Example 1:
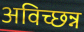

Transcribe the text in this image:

अविच्छन्न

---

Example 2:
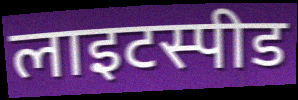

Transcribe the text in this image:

लाइटस्पीड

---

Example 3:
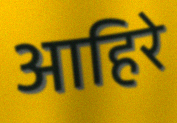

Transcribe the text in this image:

आहिरे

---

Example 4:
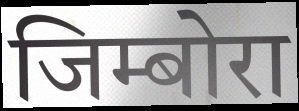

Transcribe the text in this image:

जिम्बोरा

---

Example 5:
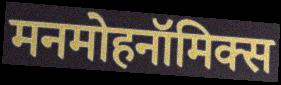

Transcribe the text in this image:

मनमोहनॉमिक्स